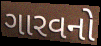
ગારવનો